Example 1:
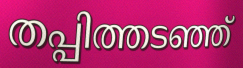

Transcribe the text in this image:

തപ്പിത്തടഞ്ഞ്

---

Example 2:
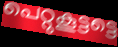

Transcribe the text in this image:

പെറ്റുകൂട്ടട്ടെ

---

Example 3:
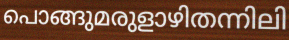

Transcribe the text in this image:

പൊങ്ങുമരുളാഴിതന്നിലി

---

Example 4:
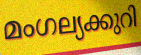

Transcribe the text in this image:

മംഗല്യക്കുറി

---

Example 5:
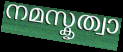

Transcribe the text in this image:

നമസ്കൃത്വാ